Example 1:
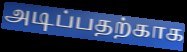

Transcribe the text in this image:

அடிப்பதற்காக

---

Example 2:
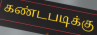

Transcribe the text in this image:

கண்டபடிக்கு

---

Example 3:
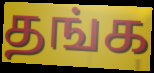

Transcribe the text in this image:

தங்க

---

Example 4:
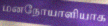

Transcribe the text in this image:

மனநோயாளியாக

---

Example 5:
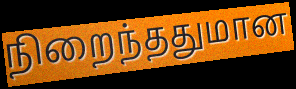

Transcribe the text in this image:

நிறைந்ததுமான